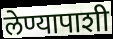
लेण्यापाशी